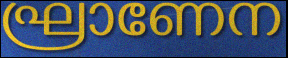
ഘ്രാണേന